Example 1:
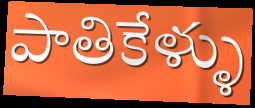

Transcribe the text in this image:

పాతికేళ్ళు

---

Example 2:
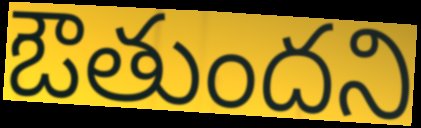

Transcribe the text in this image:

ఔతుందని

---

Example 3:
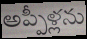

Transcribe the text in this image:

అప్పీళ్లను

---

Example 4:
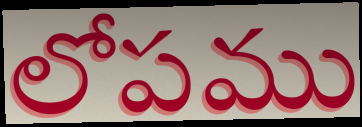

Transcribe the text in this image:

లోపము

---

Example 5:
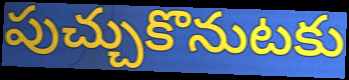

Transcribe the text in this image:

పుచ్చుకొనుటకు